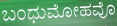
ಬಂಧುಮೋಹವೊ